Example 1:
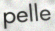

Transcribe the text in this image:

pelle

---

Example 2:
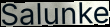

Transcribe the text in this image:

Salunke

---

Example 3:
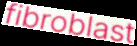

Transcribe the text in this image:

fibroblast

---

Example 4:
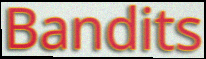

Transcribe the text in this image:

Bandits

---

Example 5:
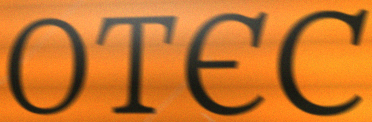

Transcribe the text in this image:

OTEC